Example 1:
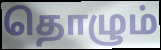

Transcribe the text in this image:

தொழும்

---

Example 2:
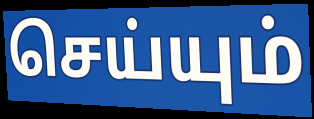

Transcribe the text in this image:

செய்யும்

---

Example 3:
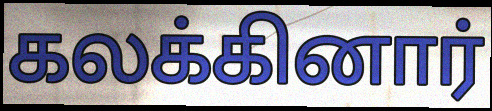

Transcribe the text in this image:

கலக்கினார்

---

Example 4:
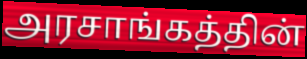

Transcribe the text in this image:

அரசாங்கத்தின்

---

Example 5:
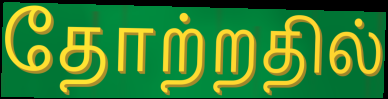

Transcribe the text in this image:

தோற்றதில்